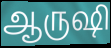
ஆருஷி